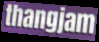
thangjam